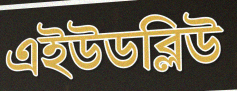
এইউডব্লিউ